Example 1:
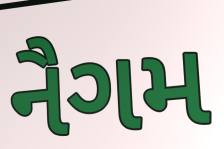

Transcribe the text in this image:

નૈગમ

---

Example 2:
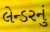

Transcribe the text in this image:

લેન્ડરનું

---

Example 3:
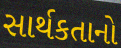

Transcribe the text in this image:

સાર્થકતાનો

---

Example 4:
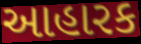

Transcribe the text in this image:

આહારક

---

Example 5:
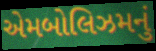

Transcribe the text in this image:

એમબોલિઝમનું